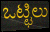
ಒಟ್ಟಿಲು